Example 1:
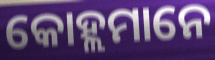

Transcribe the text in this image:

କୋହ୍ଲମାନେ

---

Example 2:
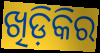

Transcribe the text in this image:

ଖିଡ଼ିକିର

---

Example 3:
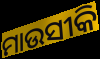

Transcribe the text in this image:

ମାଉସୀକି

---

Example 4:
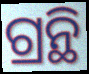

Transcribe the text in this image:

ଗ୍ରନ୍ଥି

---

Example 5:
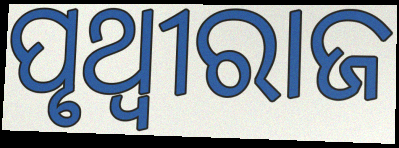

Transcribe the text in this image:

ପୃଥ୍ୱୀରାଜ